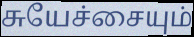
சுயேச்சையும்